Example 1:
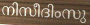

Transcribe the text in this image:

നിസീദിംസു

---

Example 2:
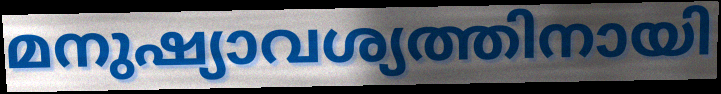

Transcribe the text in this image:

മനുഷ്യാവശ്യത്തിനായി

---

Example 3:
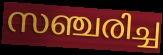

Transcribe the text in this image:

സഞ്ചരിച്ച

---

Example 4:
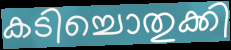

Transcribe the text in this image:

കടിച്ചൊതുക്കി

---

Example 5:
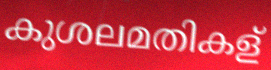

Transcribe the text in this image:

കുശലമതികള്